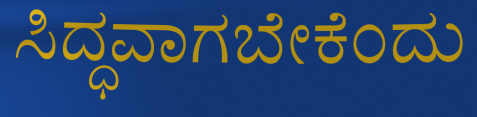
ಸಿದ್ಧವಾಗಬೇಕೆಂದು